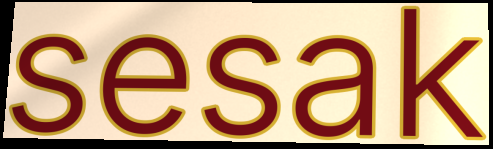
sesak